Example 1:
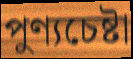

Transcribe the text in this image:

পুণ্যচেষ্টা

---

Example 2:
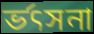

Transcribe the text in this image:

র্ভৎসনা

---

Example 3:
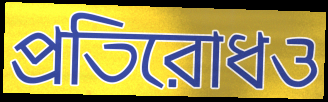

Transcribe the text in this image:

প্রতিরোধও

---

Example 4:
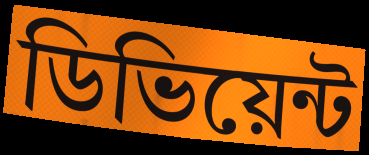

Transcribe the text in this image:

ডিভিয়েন্ট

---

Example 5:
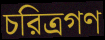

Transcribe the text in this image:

চরিত্রগণ